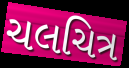
ચલચિત્ર